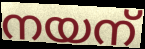
നയന്